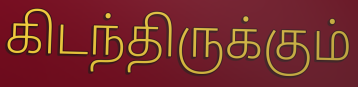
கிடந்திருக்கும்